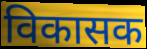
विकासक